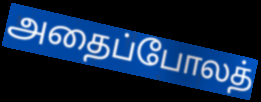
அதைப்போலத்